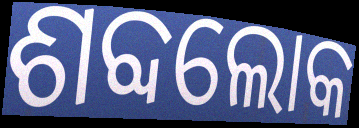
ଶବ୍ଦଲୋକ